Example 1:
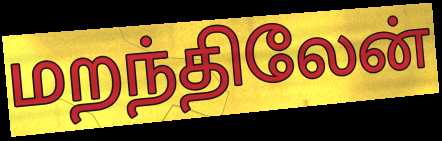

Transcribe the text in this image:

மறந்திலேன்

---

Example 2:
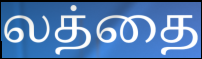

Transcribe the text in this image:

லத்தை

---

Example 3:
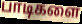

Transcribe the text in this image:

பாடிகளை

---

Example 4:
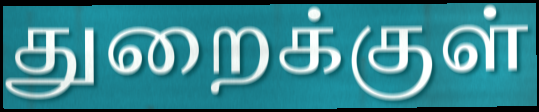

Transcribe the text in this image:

துறைக்குள்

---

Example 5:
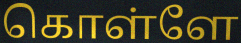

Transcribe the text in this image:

கொள்ளே